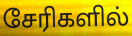
சேரிகளில்